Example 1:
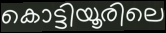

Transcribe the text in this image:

കൊട്ടിയൂരിലെ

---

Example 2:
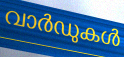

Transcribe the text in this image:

വാർഡുകൾ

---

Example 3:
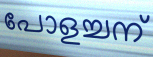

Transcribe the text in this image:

പോളച്ചന്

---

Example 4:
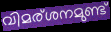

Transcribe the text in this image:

വിമര്ശനമുണ്ട്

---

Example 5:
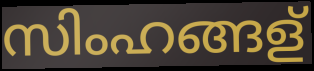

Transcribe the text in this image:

സിംഹങ്ങള്